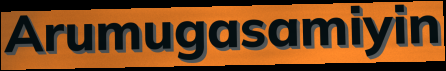
Arumugasamiyin